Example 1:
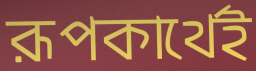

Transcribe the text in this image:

রূপকার্থেই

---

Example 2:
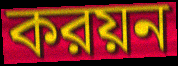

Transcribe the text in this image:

করয়ন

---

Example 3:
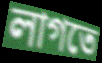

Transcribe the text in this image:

লাগতে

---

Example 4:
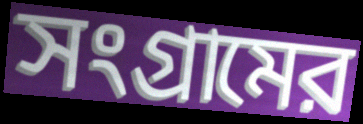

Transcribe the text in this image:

সংগ্রামের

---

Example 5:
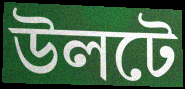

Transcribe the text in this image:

উলটে